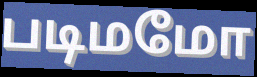
படிமமோ